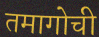
तमागोची